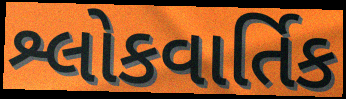
શ્લોકવાર્તિક